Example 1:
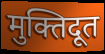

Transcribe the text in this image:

मुक्तिदूत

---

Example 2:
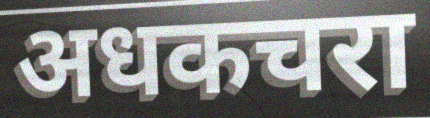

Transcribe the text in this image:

अधकचरा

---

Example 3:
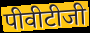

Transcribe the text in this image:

पीवीटीजी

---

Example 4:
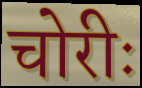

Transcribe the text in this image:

चोरीः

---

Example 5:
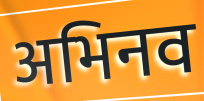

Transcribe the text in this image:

अभिनव